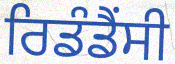
ਰਿਡੰਡੈਂਸੀ